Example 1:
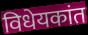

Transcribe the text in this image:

विधेयकांत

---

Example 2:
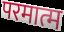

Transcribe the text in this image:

परमात्म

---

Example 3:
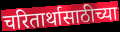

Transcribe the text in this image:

चरितार्थासाठीच्या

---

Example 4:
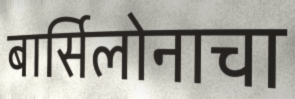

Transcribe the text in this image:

बार्सिलोनाचा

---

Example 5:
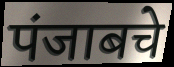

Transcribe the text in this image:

पंजाबचे